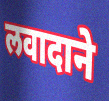
लवादाने